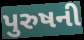
પુરુષની